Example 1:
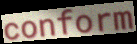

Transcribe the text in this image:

conform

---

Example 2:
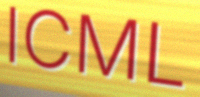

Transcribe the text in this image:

ICML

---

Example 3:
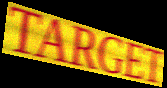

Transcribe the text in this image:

TARGET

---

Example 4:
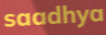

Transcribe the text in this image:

saadhya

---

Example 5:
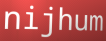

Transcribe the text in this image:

nijhum